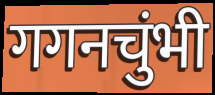
गगनचुंभी